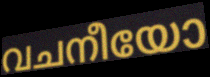
വചനീയോ